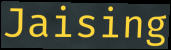
Jaising